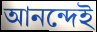
আনন্দেই